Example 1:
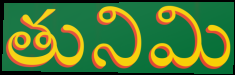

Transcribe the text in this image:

తునిమి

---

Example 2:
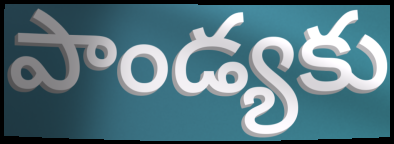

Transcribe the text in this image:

పాండ్యకు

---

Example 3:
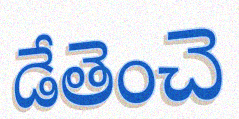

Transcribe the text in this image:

డేతెంచె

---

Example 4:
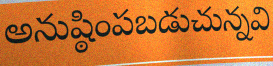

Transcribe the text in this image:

అనుష్ఠింపబడుచున్నవి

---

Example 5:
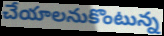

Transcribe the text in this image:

చేయాలనుకొంటున్న